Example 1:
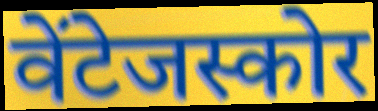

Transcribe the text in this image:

वेंटेजस्कोर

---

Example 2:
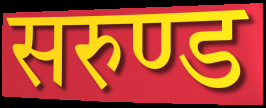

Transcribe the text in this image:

सरुण्ड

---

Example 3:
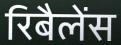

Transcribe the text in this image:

रिबैलेंस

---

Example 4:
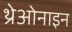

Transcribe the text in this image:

थ्रेओनाइन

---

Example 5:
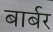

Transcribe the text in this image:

बार्बर